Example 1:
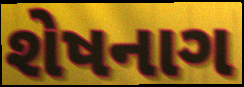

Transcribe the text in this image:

શેષનાગ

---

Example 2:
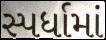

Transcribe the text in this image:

સ્પર્ધામાં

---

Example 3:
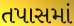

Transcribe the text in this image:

તપાસમાં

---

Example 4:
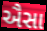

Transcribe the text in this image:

ઐસા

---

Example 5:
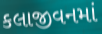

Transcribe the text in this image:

કલાજીવનમાં